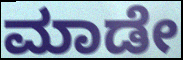
ಮಾಡೇ